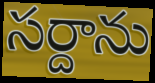
సర్దాను